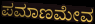
ಪಮಾಣಮೇವ